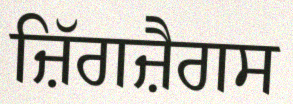
ਜ਼ਿੱਗਜ਼ੈਗਸ